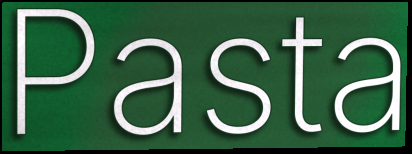
Pasta